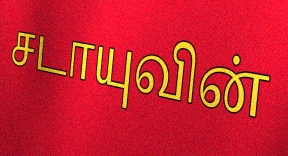
சடாயுவின்